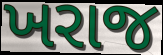
ખરાજ